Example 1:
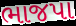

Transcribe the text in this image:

ભાજપા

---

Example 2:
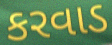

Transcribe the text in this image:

કરવાડ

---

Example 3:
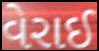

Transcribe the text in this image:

વેરાઈ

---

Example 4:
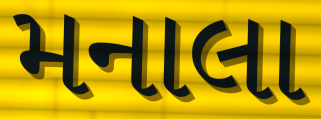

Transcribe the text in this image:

મનાલા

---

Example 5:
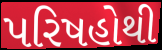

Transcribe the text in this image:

પરિષહોથી